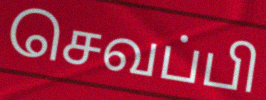
செவப்பி